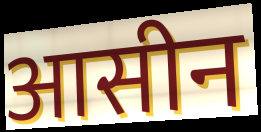
आसीन